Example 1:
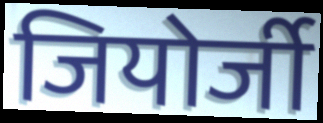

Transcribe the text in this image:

जियोर्जी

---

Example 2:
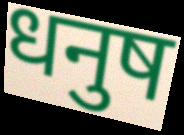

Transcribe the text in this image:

धनुष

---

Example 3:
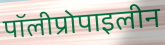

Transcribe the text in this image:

पॉलीप्रोपाइलीन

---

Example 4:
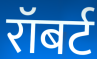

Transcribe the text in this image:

रॉबर्ट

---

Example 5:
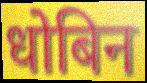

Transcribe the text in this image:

धोबिन